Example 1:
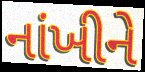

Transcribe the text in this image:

નાંખીને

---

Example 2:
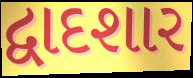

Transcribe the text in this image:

દ્વાદશાર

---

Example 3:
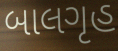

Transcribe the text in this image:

બાલગૃહ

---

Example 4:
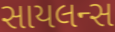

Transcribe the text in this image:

સાયલન્સ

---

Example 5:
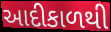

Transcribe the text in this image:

આદીકાળથી